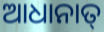
ଆଧାନାତ୍